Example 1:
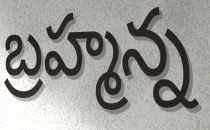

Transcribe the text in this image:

బ్రహ్మన్న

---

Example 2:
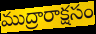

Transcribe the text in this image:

ముద్రారాక్షసం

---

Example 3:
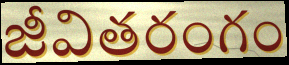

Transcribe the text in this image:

జీవితరంగం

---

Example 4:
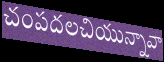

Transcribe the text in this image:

చంపదలచియున్నావా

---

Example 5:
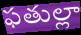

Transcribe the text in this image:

ఫతుల్లా